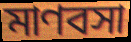
মাণবসা